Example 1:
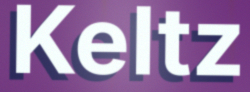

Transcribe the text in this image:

Keltz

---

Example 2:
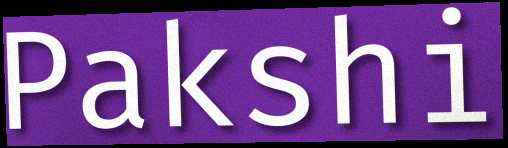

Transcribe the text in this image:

Pakshi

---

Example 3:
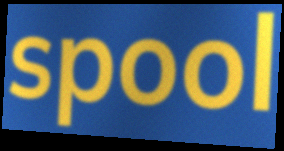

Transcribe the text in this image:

spool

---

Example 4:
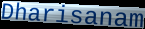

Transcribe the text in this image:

Dharisanam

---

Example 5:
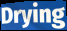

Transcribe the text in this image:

Drying